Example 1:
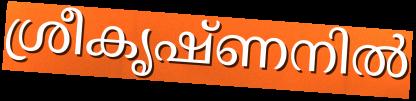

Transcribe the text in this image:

ശ്രീകൃഷ്ണനിൽ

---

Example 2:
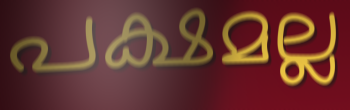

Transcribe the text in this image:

പക്ഷമല്ല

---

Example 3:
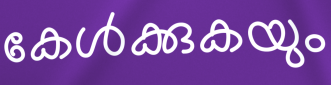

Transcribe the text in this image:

കേൾക്കുകയും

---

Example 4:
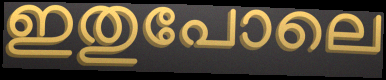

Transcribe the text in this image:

ഇതുപോലെ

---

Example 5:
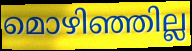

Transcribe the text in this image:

മൊഴിഞ്ഞില്ല